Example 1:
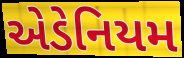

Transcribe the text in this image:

એડેનિયમ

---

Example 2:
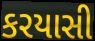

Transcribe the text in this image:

કરયાસી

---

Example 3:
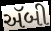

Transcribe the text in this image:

ઍબી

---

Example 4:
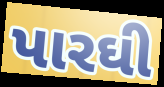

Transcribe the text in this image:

પારઘી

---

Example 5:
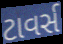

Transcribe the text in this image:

ટાવર્સ